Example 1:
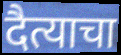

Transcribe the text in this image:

दैत्याचा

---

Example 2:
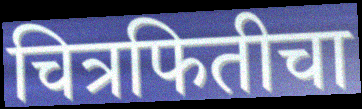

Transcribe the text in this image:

चित्रफितीचा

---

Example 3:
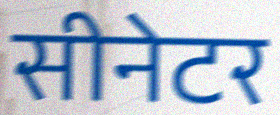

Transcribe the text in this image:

सीनेटर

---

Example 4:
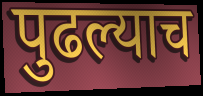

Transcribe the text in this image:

पुढल्याच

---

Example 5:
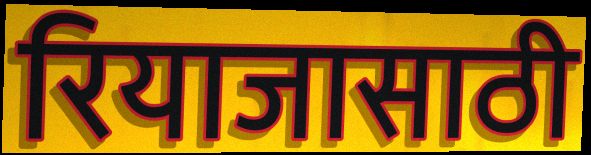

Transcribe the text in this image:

रियाजासाठी